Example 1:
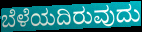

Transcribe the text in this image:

ಬೆಳೆಯದಿರುವುದು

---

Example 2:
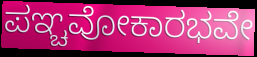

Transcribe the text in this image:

ಪಞ್ಚವೋಕಾರಭವೇ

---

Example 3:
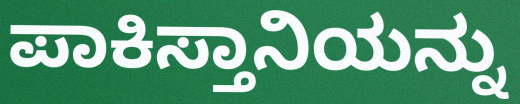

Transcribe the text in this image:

ಪಾಕಿಸ್ತಾನಿಯನ್ನು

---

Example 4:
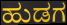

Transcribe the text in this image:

ಹುಡಗ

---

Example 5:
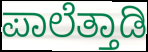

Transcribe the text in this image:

ಪಾಲೆತ್ತಾಡಿ